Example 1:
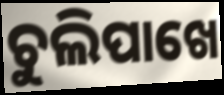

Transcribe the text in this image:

ଚୁଲିପାଖେ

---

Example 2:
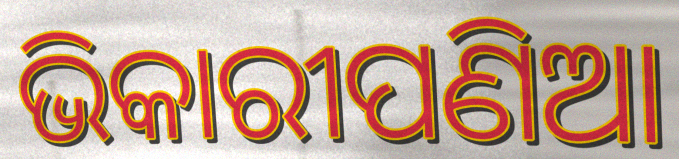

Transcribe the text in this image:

ଭିକାରୀପଣିଆ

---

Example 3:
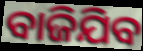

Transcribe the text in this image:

ବାଜିଯିବ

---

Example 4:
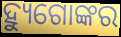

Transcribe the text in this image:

ହ୍ୟୁଗୋଙ୍କର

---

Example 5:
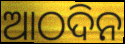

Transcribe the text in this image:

ଆଠଦିନ